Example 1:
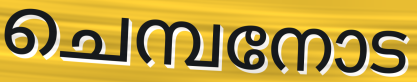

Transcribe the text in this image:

ചെമ്പനോട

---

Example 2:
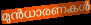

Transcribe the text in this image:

മുൻധാരണകൾ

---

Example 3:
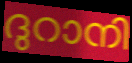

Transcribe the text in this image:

ദുറാനി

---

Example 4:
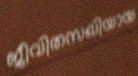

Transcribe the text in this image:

ജീവിതസഖിയായ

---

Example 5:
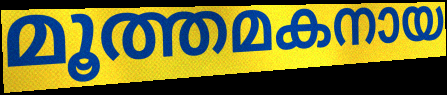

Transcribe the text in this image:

മൂത്തമകനായ